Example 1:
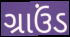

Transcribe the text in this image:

ગ્રાઉંડ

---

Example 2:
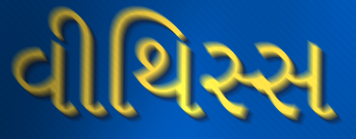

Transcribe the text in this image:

વીથિસ્સ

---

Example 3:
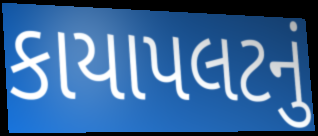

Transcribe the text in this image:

કાયાપલટનું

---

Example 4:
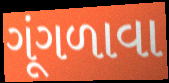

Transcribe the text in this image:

ગૂંગળાવા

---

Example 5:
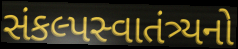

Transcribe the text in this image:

સંકલ્પસ્વાતંત્ર્યનો